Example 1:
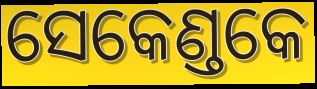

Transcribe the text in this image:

ସେକେଣ୍ଡକେ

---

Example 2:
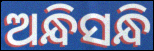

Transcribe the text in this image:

ଅନ୍ଧିସନ୍ଧି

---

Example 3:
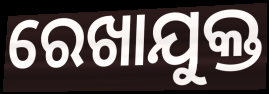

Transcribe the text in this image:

ରେଖାଯୁକ୍ତ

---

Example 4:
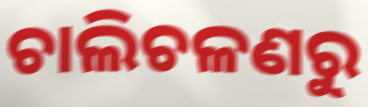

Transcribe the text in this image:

ଚାଲିଚଳଣରୁ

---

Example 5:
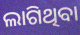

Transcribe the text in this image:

ଲାଗିଥିବା